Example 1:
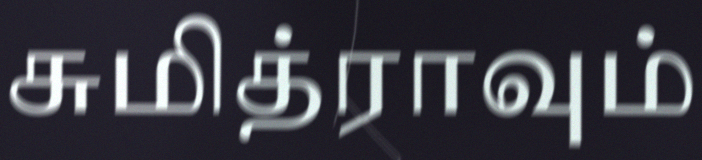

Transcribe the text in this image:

சுமித்ராவும்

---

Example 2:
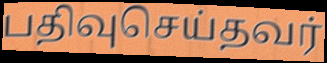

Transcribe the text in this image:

பதிவுசெய்தவர்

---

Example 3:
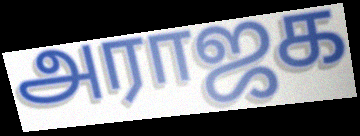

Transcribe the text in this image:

அராஜக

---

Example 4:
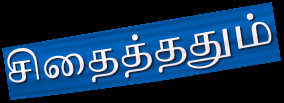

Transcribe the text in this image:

சிதைத்ததும்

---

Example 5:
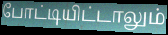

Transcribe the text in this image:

போட்டியிட்டாலும்